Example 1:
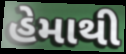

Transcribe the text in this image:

હેમાથી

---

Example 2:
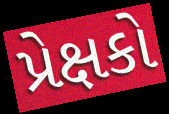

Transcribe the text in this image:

પ્રેક્ષકો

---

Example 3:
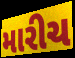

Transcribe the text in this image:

મારીચ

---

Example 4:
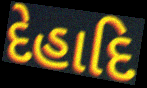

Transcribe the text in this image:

દેહાદિ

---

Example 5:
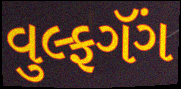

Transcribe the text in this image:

વુલ્ફગૅંગ